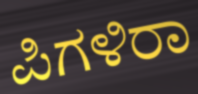
ಪಿಗಳಿರಾ